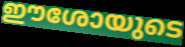
ഈശോയുടെ